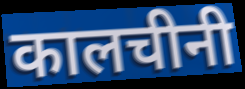
कालचीनी